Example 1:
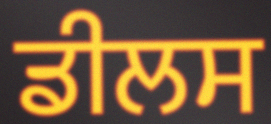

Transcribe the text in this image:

ਡੀਲਸ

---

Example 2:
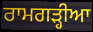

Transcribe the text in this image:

ਰਾਮਗਡ਼੍ਹੀਆ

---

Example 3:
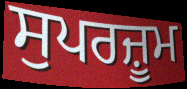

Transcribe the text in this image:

ਸੁਪਰਜ਼ੂਮ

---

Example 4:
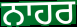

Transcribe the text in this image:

ਨਾਹਰ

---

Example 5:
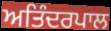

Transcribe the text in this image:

ਅਤਿੰਦਰਪਾਲ